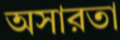
অসারতা